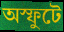
অস্ফুটে